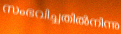
സംഭവിച്ചതിൽനിന്നു